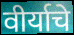
वीर्याचे